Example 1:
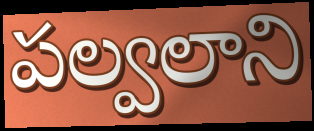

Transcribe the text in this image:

పల్వలాని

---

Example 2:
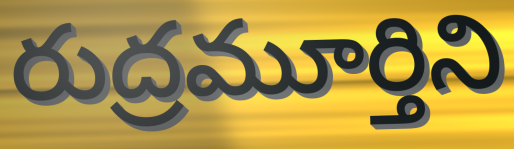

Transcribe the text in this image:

రుద్రమూర్తిని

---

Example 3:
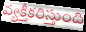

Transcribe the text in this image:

వ్యక్తీకరిస్తుంది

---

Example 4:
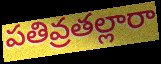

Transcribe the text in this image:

పతివ్రతల్లారా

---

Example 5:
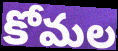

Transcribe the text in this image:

కోమల